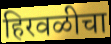
हिरवळीचा